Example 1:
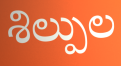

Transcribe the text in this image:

శిల్పుల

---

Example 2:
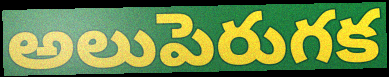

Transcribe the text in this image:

అలుపెరుగక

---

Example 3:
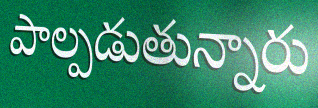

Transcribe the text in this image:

పాల్పడుతున్నారు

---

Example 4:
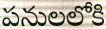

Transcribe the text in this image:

పనులలోకి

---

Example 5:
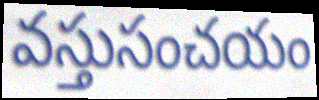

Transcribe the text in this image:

వస్తుసంచయం